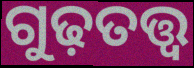
ଗୁଢ଼ତତ୍ତ୍ୱ